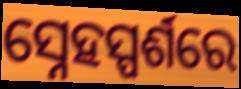
ସ୍ନେହସ୍ପର୍ଶରେ